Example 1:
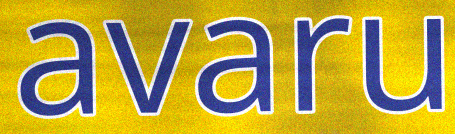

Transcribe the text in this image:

avaru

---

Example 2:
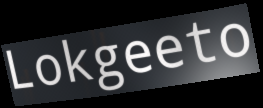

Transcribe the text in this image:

Lokgeeto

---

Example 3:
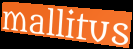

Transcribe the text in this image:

mallitus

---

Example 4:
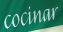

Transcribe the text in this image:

cocinar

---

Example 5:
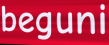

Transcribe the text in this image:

beguni